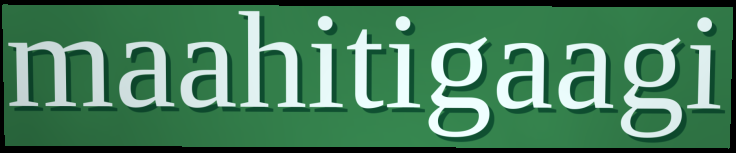
maahitigaagi